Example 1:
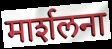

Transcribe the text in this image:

मार्शलना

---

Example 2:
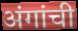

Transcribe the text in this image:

अंगांची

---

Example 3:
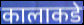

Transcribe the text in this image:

कालाकडे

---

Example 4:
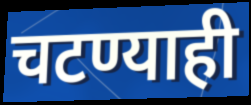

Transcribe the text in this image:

चटण्याही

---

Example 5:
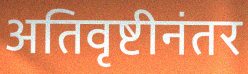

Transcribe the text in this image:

अतिवृष्टीनंतर